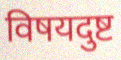
विषयदुष्ट